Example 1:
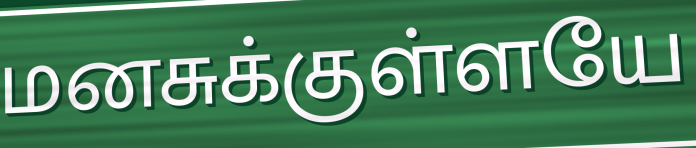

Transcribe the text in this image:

மனசுக்குள்ளயே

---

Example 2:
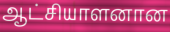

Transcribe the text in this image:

ஆட்சியாளனான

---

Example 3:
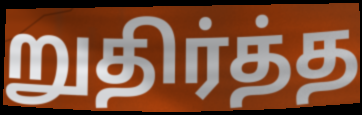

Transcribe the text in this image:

றுதிர்த்த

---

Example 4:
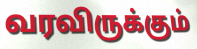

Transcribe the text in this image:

வரவிருக்கும்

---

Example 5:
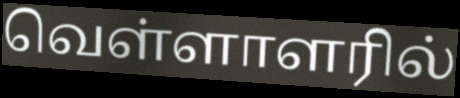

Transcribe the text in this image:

வெள்ளாளரில்